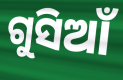
ଗୁସିଆଁ